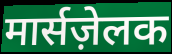
मार्सज़ेलक